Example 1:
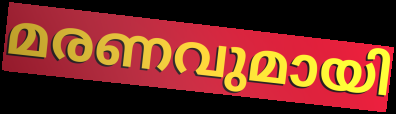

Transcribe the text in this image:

മരണവുമായി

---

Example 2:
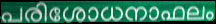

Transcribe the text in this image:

പരിശോധനാഫലം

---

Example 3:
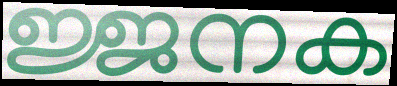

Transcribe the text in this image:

ജ്ജനക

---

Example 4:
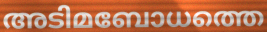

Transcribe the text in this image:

അടിമബോധത്തെ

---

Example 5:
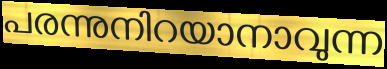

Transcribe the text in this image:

പരന്നുനിറയാനാവുന്ന